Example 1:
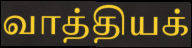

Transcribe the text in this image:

வாத்தியக்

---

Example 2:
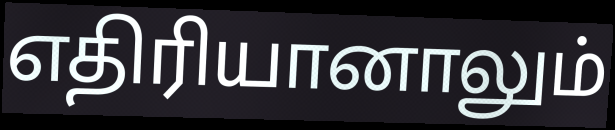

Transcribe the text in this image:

எதிரியானாலும்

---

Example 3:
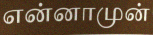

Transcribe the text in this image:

என்னாமுன்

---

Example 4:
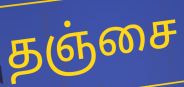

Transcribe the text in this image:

தஞ்சை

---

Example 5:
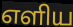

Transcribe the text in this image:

எளிய